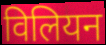
विलियन